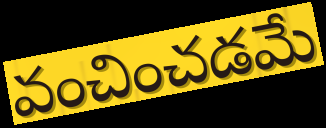
వంచించడమే